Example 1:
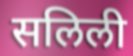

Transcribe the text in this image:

सलिली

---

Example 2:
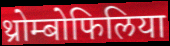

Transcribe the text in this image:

थ्रोम्बोफिलिया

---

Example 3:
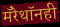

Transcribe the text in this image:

मॅरेथॉनही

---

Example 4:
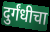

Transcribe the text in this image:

दुर्गंधीचा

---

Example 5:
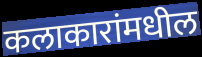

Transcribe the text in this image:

कलाकारांमधील